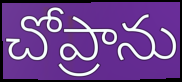
చోప్రాను